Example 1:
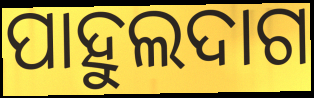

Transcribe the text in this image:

ପାହୁଲଦାଗ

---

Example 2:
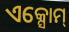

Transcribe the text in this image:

ଏକ୍ସୋମ୍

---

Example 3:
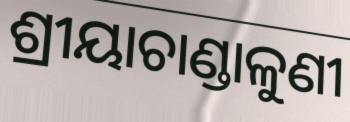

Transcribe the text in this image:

ଶ୍ରୀୟାଚାଣ୍ଡାଳୁଣୀ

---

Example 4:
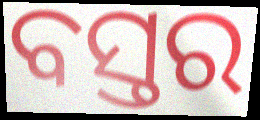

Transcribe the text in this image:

ବସ୍ତର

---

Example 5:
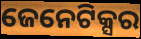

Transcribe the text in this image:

ଜେନେଟିକ୍ସର